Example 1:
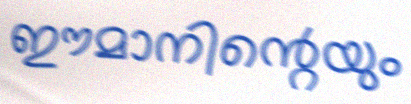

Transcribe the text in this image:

ഈമാനിന്റെയും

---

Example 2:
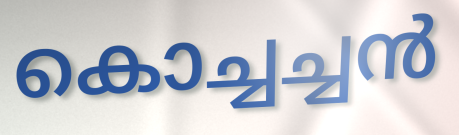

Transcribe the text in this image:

കൊച്ചച്ചൻ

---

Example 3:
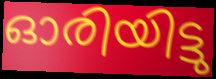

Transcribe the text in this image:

ഓരിയിട്ടു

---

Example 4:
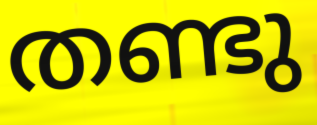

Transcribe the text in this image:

തണ്ടു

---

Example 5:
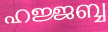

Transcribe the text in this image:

ഹജ്ജബ്ബ